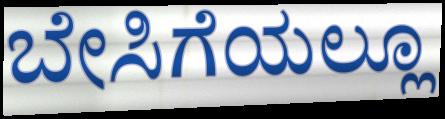
ಬೇಸಿಗೆಯಲ್ಲೂ